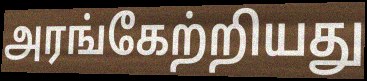
அரங்கேற்றியது